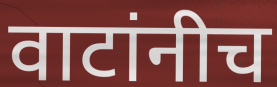
वाटांनीच